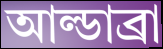
আল্ডাব্রা